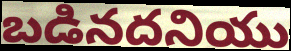
బడినదనియు